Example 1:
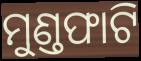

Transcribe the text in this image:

ମୁଣ୍ଡଫାଟି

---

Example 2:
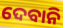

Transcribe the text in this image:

ଦେବାନି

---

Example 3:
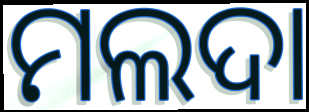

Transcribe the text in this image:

ମଲଦା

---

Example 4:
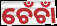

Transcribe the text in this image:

ଚେଁଚାଁ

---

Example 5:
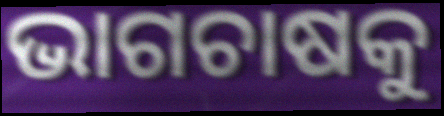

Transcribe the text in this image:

ଭାଗଚାଷକୁ